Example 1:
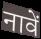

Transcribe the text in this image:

नावें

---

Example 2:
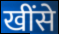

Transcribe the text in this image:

खींसे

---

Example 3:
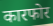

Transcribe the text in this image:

कारफोर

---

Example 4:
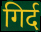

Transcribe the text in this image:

गिर्द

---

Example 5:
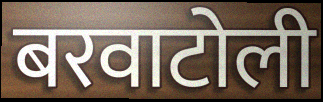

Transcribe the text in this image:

बरवाटोली